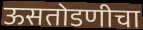
ऊसतोडणीचा